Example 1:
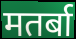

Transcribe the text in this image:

मतर्बा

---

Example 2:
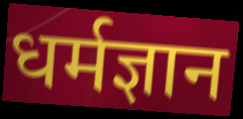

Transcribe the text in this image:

धर्मज्ञान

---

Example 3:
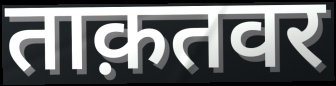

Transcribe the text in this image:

ताक़तवर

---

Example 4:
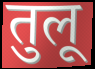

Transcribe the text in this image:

तुलू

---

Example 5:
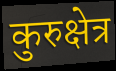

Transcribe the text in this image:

कुरुक्षेत्र